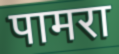
पामरा